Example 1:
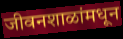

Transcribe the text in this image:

जीवनशाळांमधून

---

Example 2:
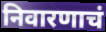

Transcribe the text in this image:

निवारणाचं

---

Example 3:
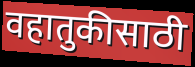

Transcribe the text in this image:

वहातुकीसाठी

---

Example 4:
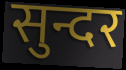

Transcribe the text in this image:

सुन्दर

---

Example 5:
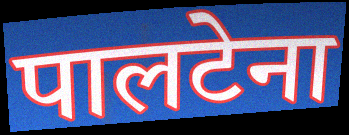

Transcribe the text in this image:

पालटेना